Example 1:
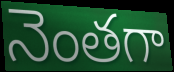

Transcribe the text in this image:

నెంతగా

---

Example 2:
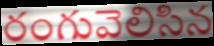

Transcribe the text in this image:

రంగువెలిసిన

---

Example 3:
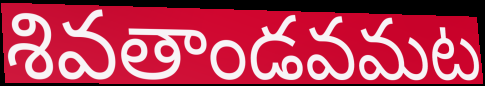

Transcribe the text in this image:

శివతాండవమట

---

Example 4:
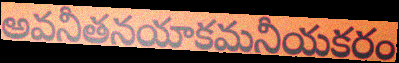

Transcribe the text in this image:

అవనీతనయాకమనీయకరం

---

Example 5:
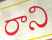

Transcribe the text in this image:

రాని